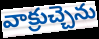
వాక్రుచ్చెను